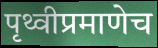
पृथ्वीप्रमाणेच